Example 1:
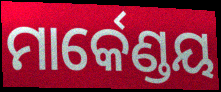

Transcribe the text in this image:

ମାର୍କେଣ୍ଡୟ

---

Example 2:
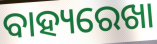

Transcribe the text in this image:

ବାହ୍ୟରେଖା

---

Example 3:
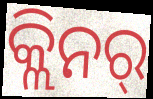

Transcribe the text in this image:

କ୍ଲିନର୍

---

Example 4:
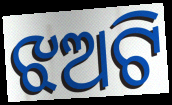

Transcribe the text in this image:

ଝଅଟି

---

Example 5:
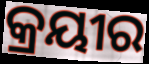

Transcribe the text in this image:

କ୍ରୟୀର